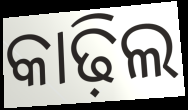
କାଢ଼ିଲ